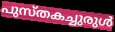
പുസ്തകച്ചുരുൾ